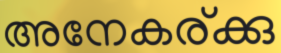
അനേകര്ക്കു